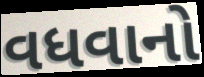
વધવાનો